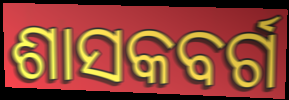
ଶାସକବର୍ଗ